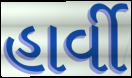
હાર્વી